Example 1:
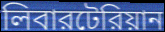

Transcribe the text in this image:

লিবারটেরিয়ান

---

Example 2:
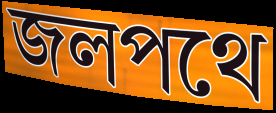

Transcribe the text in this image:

জলপথে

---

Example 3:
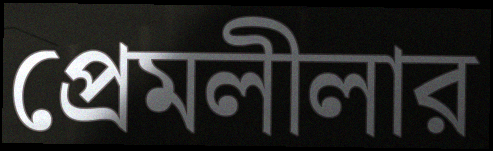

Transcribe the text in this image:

প্রেমলীলার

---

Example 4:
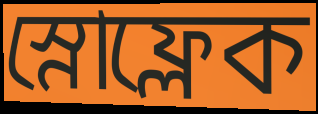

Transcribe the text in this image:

স্নোফ্লেক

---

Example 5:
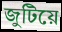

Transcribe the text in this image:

জুটিয়ে